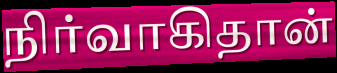
நிர்வாகிதான்